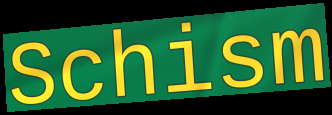
Schism